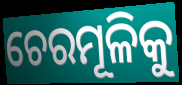
ଚେରମୂଳିକୁ